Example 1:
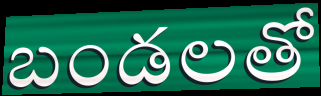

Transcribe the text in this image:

బండలతో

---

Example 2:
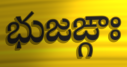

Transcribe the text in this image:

భుజఙ్గాః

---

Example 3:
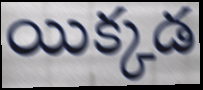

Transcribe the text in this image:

యిక్కడ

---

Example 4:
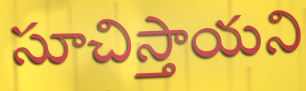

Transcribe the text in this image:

సూచిస్తాయని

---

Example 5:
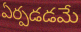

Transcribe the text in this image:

ఏర్పడడమే